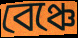
বেঞ্চে